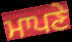
ਮਾਪਣੇ